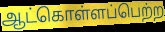
ஆட்கொள்ளப்பெற்ற